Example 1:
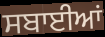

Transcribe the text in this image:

ਸਬਾਈਆਂ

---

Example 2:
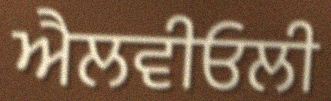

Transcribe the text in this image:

ਐਲਵੀਓਲੀ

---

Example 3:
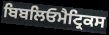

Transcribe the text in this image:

ਬਿਬਲਿਓਮੈਟ੍ਰਿਕਸ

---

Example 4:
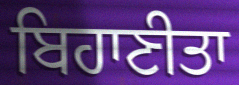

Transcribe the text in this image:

ਬਿਹਾਣੀਤਾ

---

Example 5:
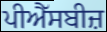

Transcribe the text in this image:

ਪੀਐੱਸਬੀਜ਼